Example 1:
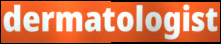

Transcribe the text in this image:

dermatologist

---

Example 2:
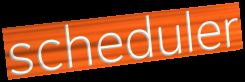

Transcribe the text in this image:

scheduler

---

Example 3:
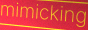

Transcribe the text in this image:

mimicking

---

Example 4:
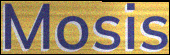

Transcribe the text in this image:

Mosis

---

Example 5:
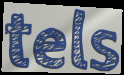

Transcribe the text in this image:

tels